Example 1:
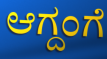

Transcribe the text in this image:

ಆಗ್ದಂಗೆ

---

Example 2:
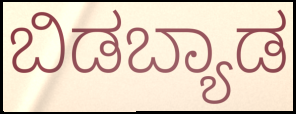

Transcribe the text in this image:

ಬಿಡಬ್ಯಾಡ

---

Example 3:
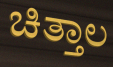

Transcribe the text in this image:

ಚಿತ್ತಾಲ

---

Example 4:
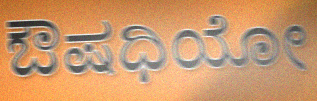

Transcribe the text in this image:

ಔಷಧಿಯೋ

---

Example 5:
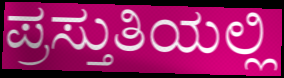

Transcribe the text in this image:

ಪ್ರಸ್ತುತಿಯಲ್ಲಿ